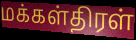
மக்கள்திரள்